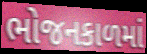
ભોજનકાળમાં